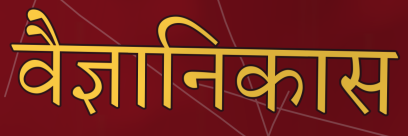
वैज्ञानिकास